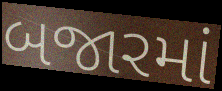
બજારમાં